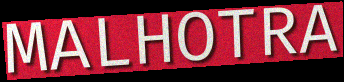
MALHOTRA